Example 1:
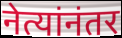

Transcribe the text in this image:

नेत्यांनंतर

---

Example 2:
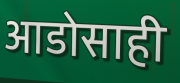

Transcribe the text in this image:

आडोसाही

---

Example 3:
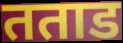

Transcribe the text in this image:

तताड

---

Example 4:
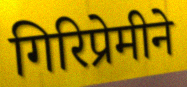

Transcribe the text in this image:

गिरिप्रेमीने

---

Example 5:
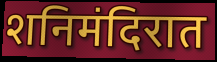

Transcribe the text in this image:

शनिमंदिरात